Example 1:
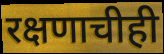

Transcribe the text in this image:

रक्षणाचीही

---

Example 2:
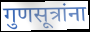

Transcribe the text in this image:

गुणसूत्रांना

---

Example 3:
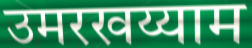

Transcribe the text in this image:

उमरखय्याम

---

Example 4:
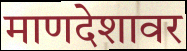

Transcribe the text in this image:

माणदेशावर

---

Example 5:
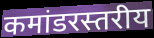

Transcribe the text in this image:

कमांडरस्तरीय